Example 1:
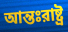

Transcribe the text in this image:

আন্তঃরাষ্ট্র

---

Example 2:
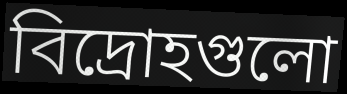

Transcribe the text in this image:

বিদ্রোহগুলো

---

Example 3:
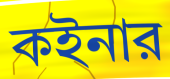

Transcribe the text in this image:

কইনার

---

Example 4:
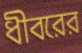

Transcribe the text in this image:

ধীবরের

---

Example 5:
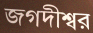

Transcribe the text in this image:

জগদীশ্বর